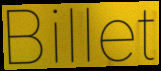
Billet